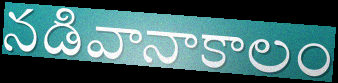
నడివానాకాలం